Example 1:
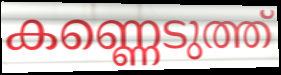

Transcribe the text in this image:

കണ്ണെടുത്ത്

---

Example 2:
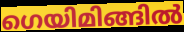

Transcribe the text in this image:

ഗെയിമിങ്ങിൽ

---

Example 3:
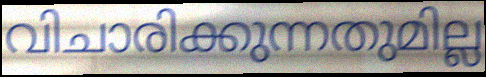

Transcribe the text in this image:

വിചാരിക്കുന്നതുമില്ല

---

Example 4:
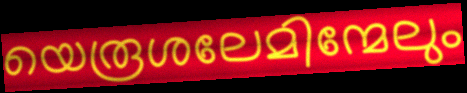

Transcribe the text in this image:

യെരൂശലേമിന്മേലും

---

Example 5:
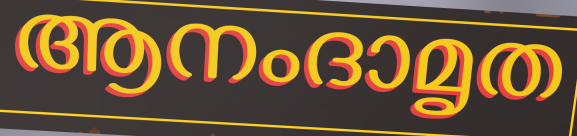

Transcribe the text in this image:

ആനംദാമൃത